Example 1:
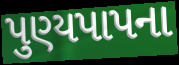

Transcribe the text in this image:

પુણ્યપાપના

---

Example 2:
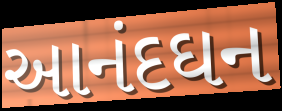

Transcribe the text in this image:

આનંદઘન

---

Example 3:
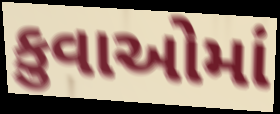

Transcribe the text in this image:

કુવાઓમાં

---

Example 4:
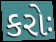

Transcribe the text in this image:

કરોઃ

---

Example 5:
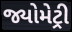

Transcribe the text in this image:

જ્યોમેટ્રી